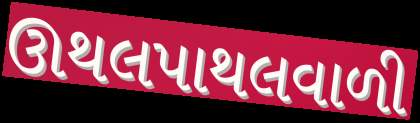
ઊથલપાથલવાળી